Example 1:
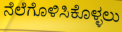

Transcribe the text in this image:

ನೆಲೆಗೊಳಿಸಿಕೊಳ್ಳಲು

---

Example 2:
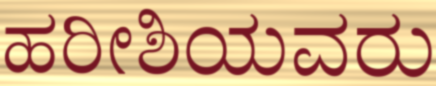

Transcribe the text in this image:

ಹರೀಶಿಯವರು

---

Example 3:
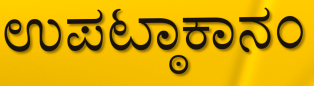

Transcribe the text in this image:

ಉಪಟ್ಠಾಕಾನಂ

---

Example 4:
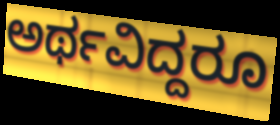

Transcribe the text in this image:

ಅರ್ಥವಿದ್ದರೂ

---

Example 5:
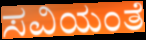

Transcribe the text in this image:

ಸವಿಯಂತೆ